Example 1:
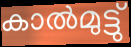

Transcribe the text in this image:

കാൽമുട്ടു്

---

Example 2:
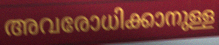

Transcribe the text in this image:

അവരോധിക്കാനുള്ള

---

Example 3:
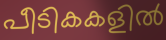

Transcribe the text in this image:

പീടികകളിൽ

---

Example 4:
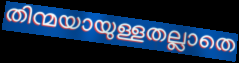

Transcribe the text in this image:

തിന്മയായുള്ളതല്ലാതെ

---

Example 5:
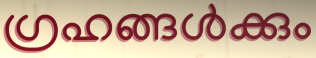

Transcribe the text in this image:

ഗ്രഹങ്ങൾക്കും